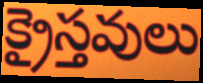
క్రైస్తవులు